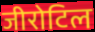
जीरोटिल